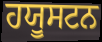
ਹਯੂਸਟਨ